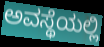
ಅವಸ್ಥೆಯಲ್ಲಿ